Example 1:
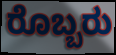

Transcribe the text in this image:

ರೊಬ್ಬರು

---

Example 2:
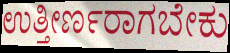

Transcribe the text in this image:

ಉತ್ತೀರ್ಣರಾಗಬೇಕು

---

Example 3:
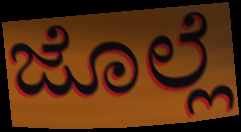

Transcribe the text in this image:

ಜೊಲ್ಲೆ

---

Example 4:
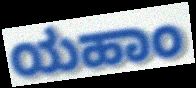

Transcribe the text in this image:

ಯಹಾಂ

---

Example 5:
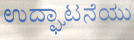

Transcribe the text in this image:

ಉದ್ಘಾಟನೆಯು